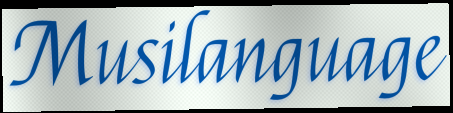
Musilanguage